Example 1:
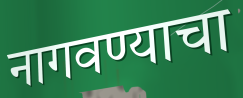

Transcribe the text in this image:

नागवण्याचा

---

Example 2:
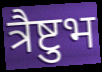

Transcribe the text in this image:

त्रैष्टुभ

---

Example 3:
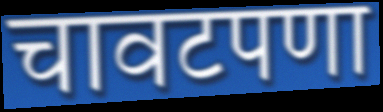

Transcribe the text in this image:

चावटपणा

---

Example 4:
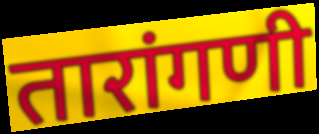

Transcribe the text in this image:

तारांगणी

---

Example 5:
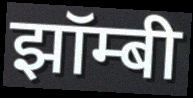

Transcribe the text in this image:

झॉम्बी